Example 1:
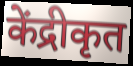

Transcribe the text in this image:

केंद्रीकृत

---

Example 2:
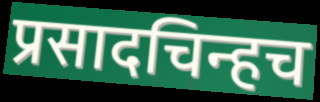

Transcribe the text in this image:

प्रसादचिन्हच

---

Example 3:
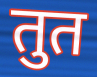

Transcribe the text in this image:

तुत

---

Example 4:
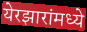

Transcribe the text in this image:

येरझारांमध्ये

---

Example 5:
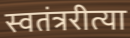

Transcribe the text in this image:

स्वतंत्ररीत्या